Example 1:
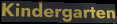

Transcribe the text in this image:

Kindergarten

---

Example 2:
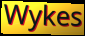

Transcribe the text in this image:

Wykes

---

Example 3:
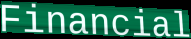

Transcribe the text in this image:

Financial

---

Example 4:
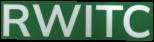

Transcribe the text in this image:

RWITC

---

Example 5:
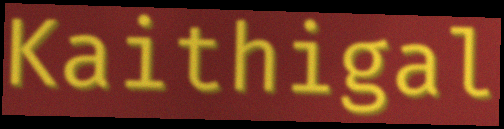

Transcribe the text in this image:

Kaithigal